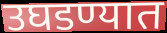
उघडण्यात